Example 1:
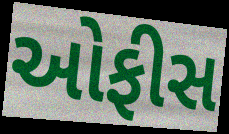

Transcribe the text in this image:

ઓફીસ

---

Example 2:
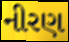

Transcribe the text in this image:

નીરણ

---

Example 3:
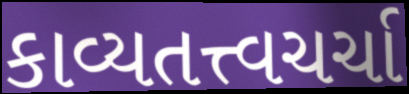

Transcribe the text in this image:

કાવ્યતત્ત્વચર્ચા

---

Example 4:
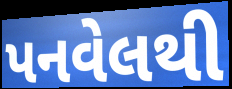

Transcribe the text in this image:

પનવેલથી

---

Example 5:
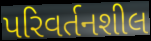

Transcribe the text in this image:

પરિવર્તનશીલ